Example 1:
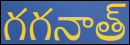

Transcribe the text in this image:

గగనాత్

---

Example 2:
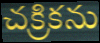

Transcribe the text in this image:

చక్రికను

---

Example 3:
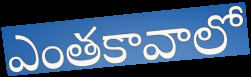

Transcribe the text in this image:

ఎంతకావాలో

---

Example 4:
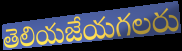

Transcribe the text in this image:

తెలియజేయగలరు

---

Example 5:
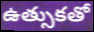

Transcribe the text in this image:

ఉత్సుకతో